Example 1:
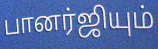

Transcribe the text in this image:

பானர்ஜியும்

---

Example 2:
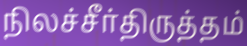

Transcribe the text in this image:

நிலச்சீர்திருத்தம்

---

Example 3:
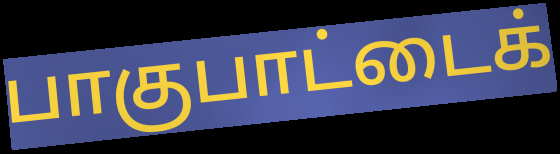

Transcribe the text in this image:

பாகுபாட்டைக்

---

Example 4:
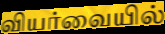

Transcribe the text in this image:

வியர்வையில்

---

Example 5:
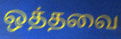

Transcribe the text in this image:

ஒத்தவை